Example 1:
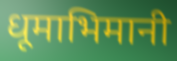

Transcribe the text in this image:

धूमाभिमानी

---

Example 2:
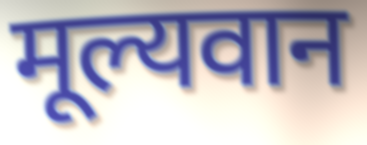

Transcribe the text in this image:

मूल्यवान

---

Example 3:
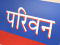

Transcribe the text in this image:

परिवन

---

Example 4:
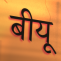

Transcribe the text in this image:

बीयू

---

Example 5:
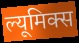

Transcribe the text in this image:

ल्यूमिक्स